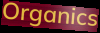
Organics